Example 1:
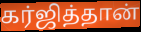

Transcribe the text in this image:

கர்ஜித்தான்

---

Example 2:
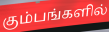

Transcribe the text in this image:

கும்பங்களில்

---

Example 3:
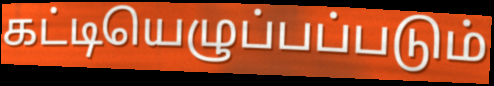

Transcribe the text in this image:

கட்டியெழுப்பப்படும்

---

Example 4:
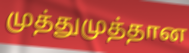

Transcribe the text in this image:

முத்துமுத்தான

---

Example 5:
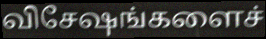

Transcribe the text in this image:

விசேஷங்களைச்